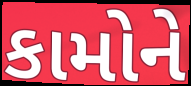
કામોને